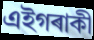
এইগৰাকী